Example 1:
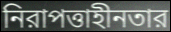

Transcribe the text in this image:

নিরাপত্তাহীনতার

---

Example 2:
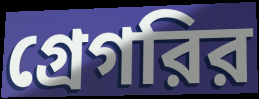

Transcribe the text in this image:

গ্রেগরির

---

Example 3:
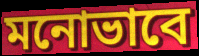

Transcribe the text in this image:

মনোভাবে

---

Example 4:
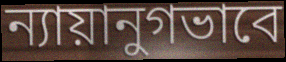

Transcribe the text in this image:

ন্যায়ানুগভাবে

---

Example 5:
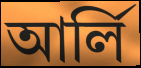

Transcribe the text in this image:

আর্লি